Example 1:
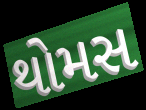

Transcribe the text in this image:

થોમસ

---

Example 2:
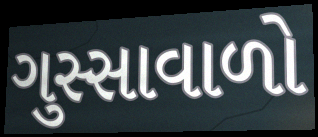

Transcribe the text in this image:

ગુસ્સાવાળો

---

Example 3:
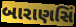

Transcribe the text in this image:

બારાણસિં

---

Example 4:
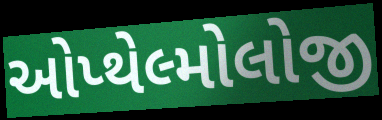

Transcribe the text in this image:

ઓપ્થેલ્મોલોજી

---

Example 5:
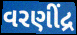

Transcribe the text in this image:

વરણીંદ્ર